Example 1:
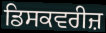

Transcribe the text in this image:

ਡਿਸਕਵਰੀਜ਼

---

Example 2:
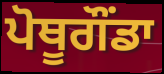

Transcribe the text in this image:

ਪੋਥੂਗੌਂਡਾ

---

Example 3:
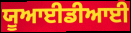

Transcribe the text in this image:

ਯੂਆਈਡੀਆਈ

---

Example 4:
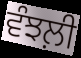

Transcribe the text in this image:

ਵੰਝਲ਼ੀ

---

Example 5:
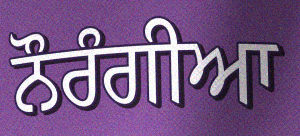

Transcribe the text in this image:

ਨੌਰੰਗੀਆ